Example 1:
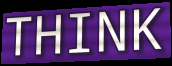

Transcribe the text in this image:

THINK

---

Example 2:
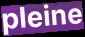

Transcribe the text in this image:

pleine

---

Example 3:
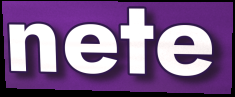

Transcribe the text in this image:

nete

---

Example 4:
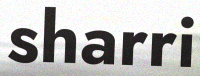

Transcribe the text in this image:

sharri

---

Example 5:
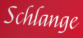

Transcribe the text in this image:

Schlange